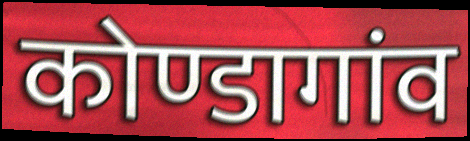
कोण्डागांव